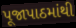
પૂજાપાઠમાંથી